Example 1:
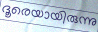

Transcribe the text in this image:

ദൂരെയായിരുന്നു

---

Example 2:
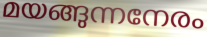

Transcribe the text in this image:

മയങ്ങുന്നനേരം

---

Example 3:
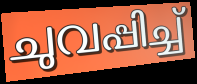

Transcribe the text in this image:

ചുവപ്പിച്ച്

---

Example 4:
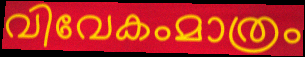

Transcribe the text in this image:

വിവേകംമാത്രം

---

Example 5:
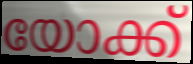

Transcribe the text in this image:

യോക്ക്